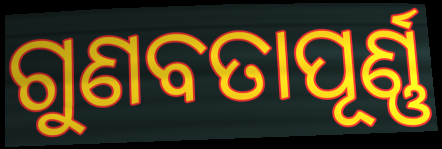
ଗୁଣବତାପୂର୍ଣ୍ଣ